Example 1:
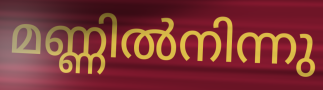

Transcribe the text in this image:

മണ്ണിൽനിന്നു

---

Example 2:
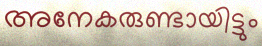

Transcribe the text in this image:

അനേകരുണ്ടായിട്ടും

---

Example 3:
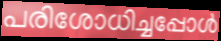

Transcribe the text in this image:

പരിശോധിച്ചപ്പോൾ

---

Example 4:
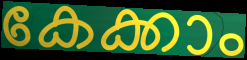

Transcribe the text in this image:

കേക്കാം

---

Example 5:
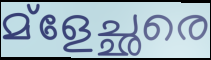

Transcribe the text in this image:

മ്ളേച്ഛരെ